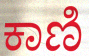
ಕಾಣಿ